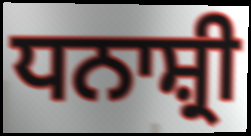
ਧਨਾਸ਼੍ਰੀ